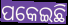
ପକେଇଛି